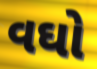
વઘો